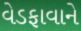
વેડફાવાને